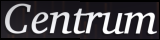
Centrum